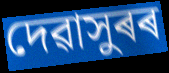
দেৱাসুৰৰ